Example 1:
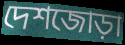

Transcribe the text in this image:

দেশজোড়া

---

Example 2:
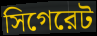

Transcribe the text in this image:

সিগেরেট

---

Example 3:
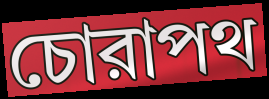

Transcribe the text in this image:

চোরাপথ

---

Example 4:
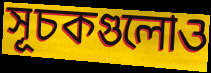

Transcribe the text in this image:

সূচকগুলোও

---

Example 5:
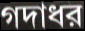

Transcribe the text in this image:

গদাধর